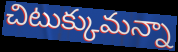
చిటుక్కుమన్నా